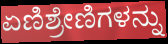
ಏಣಿಶ್ರೇಣಿಗಳನ್ನು